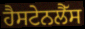
ਹੈਸਟੇਨਲੈੱਸ